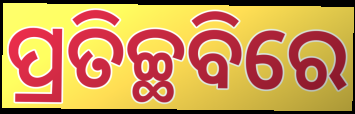
ପ୍ରତିଚ୍ଛବିରେ